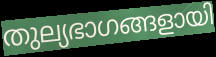
തുല്യഭാഗങ്ങളായി